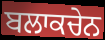
ਬਲਾਕਚੇਨ